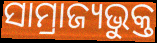
ସାମ୍ରାଜ୍ୟଭୁକ୍ତ